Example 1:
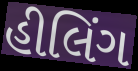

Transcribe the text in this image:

હીલિંગ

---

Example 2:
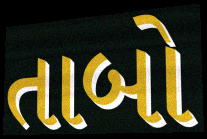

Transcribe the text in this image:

તાબો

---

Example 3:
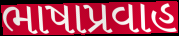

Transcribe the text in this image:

ભાષાપ્રવાહ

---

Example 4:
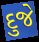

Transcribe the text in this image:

દુજે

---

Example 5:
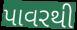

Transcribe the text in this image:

પાવરથી